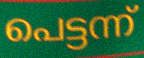
പെട്ടന്ന്